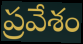
ప్రవేశం